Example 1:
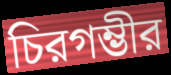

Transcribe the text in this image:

চিরগম্ভীর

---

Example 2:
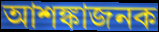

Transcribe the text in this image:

আশঙ্কাজনক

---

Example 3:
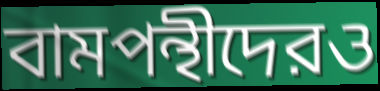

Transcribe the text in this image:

বামপন্থীদেরও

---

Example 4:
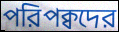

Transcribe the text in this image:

পরিপক্বদের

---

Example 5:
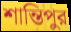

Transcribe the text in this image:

শান্তিপুর